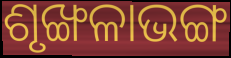
ଶୃଙ୍ଖଳାଭଙ୍ଗ